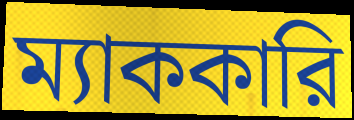
ম্যাককারি